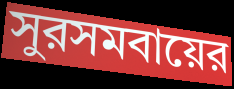
সুরসমবায়ের